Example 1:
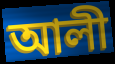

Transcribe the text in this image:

আলী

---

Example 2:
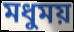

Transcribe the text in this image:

মধুময়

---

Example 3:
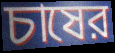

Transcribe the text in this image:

চাষের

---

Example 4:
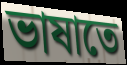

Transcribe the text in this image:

ভাষাতে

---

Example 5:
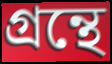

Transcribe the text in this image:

গ্রন্থে